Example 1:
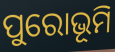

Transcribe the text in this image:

ପୁରୋଭୂମି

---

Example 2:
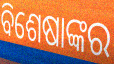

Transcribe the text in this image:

ବିଶେଷାଙ୍କର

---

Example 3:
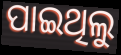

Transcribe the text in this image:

ପାଇଥିଲୁ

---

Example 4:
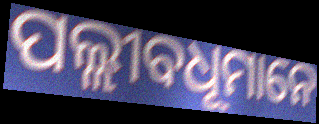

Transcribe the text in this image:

ପଲ୍ଲୀବଧୂମାନେ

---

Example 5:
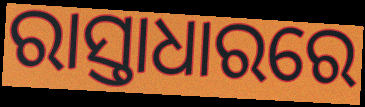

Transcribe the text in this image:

ରାସ୍ତାଧାରରେ